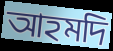
আহমদি